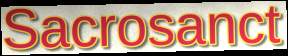
Sacrosanct